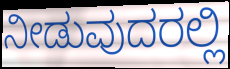
ನೀಡುವುದರಲ್ಲಿ